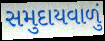
સમુદાયવાળું